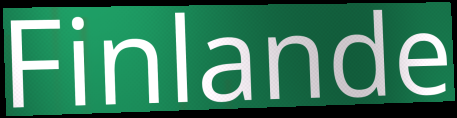
Finlande